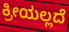
ಕ್ರೀಯಲ್ಲದೆ